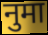
नुमा